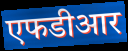
एफडीआर